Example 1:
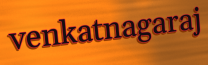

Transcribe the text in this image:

venkatnagaraj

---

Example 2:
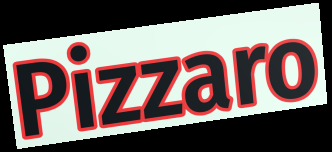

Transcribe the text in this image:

Pizzaro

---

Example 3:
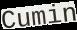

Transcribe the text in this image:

Cumin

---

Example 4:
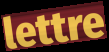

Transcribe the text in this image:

lettre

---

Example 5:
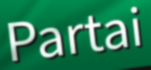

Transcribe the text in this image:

Partai